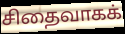
சிதைவாகக்